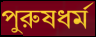
পুরুষধর্ম